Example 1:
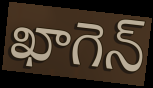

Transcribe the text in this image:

ఖాగెన్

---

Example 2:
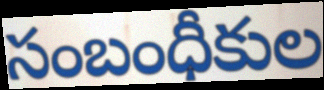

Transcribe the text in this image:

సంబంధీకుల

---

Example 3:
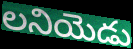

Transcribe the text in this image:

లనియెడు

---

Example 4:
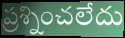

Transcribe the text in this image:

ప్రశ్నించలేదు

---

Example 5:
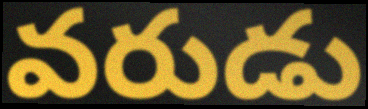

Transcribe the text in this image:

వరుడు